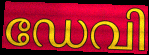
ഡേവി